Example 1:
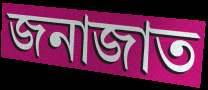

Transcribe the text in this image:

জনাজাত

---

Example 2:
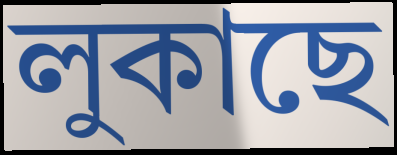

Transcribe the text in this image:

লুকাছে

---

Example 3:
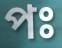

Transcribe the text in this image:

পঃ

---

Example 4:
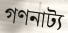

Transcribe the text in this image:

গণনাট্য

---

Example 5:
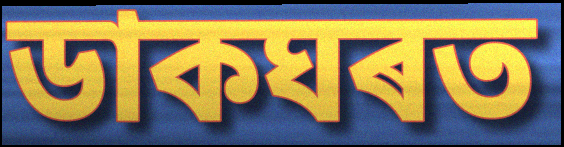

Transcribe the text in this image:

ডাকঘৰত